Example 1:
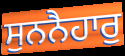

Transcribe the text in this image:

ਸੁਨਨੈਹਾਰੁ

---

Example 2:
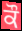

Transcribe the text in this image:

ਕੌ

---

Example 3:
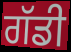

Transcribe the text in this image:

ਗੱਡੀ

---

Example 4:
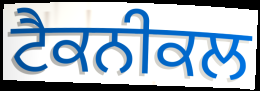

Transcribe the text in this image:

ਟੈਕਨੀਕਲ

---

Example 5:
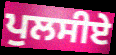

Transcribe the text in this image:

ਪੁਲਸੀਏ